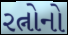
રત્નોનો